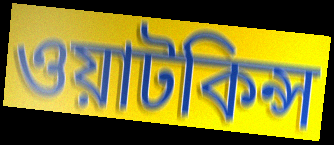
ওয়াটকিন্স